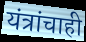
यंत्रांचाही